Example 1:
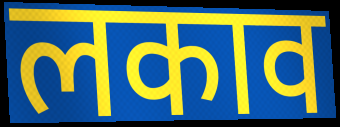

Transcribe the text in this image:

लकाव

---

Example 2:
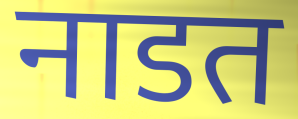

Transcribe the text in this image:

नाडत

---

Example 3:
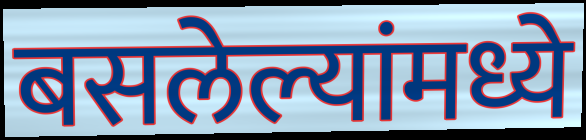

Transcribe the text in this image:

बसलेल्यांमध्ये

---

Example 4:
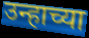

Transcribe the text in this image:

उन्हाच्या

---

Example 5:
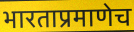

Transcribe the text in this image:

भारताप्रमाणेच